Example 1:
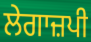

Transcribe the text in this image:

ਲੇਗਾਜ਼ਪੀ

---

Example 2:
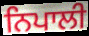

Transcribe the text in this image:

ਨਿਪਾਲੀ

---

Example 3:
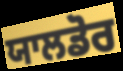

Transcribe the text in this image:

ਯਾਲਡੋਰ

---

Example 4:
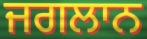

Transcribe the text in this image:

ਜਗਲਾਨ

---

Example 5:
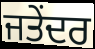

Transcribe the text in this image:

ਜਤੇਂਦਰ